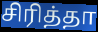
சிரித்தா